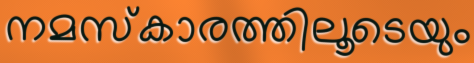
നമസ്കാരത്തിലൂടെയും